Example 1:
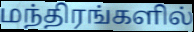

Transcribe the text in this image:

மந்திரங்களில்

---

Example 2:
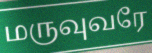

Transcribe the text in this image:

மருவுவரே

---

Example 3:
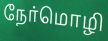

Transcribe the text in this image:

நேர்மொழி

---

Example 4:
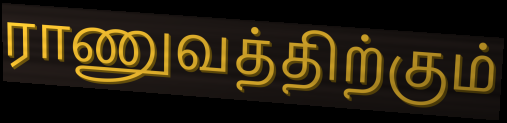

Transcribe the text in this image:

ராணுவத்திற்கும்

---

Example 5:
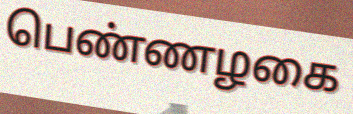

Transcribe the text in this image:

பெண்ணழகை